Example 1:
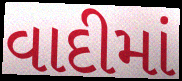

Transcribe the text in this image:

વાદીમાં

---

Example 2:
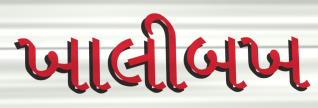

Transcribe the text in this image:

ખાલીબખ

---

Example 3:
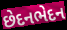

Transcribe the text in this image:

છેદનભેદન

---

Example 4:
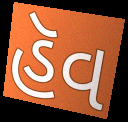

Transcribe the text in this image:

હૅવ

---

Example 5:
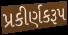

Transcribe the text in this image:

પ્રકીર્ણકરૂપ